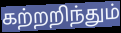
கற்றறிந்தும்